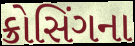
ક્રોસિંગના